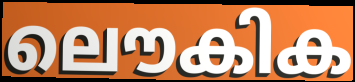
ലൌകിക